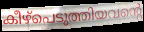
കീഴ്പെടുത്തിയവന്റെ